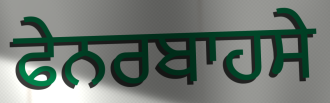
ਫੇਨਰਬਾਹਸੇ